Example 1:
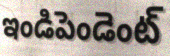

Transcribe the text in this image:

ఇండిపెండెంట్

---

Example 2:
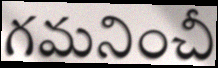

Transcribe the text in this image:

గమనించీ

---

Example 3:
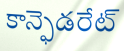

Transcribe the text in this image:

కాన్ఫెడరేట్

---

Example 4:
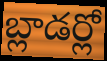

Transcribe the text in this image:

బ్లాడర్లో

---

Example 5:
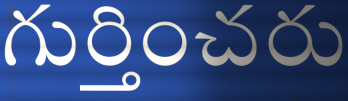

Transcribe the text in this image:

గుర్తించరు